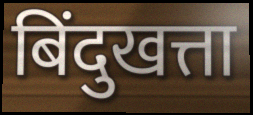
बिंदुखत्ता